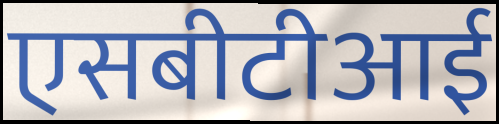
एसबीटीआई